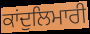
ਕਾਂਦੁਲਿਮਾਰੀ